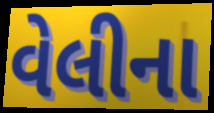
વેલીના